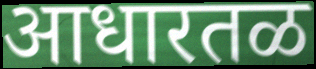
आधारतळ